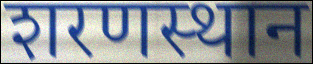
शरणस्थान